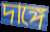
দাঙ্গে